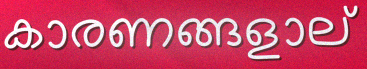
കാരണങ്ങളാല്